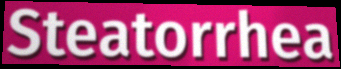
Steatorrhea